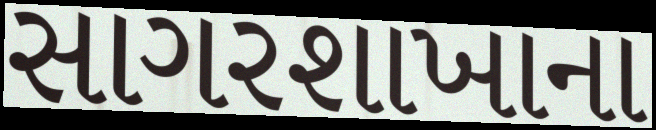
સાગરશાખાના